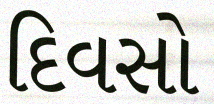
દિવસો